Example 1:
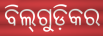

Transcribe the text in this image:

ବିଲ୍‌ଗୁଡ଼ିକର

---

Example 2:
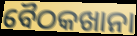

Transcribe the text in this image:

ବୈଠକଖାନା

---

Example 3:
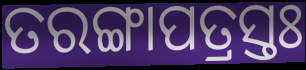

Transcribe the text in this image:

ତରଙ୍ଗାପତ୍ରସ୍ତଃ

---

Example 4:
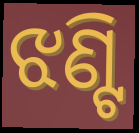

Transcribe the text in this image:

ଝଣ୍ଟି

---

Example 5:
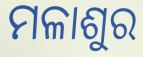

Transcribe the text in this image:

ମଳାଶୁର